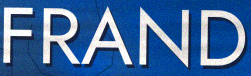
FRAND